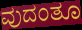
ವುದಂತೂ